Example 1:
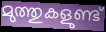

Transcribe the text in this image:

മുത്തുകളുണ്ട്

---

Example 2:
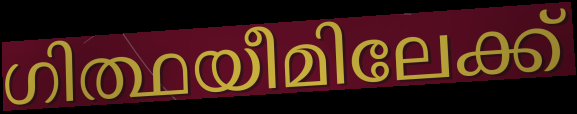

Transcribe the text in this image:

ഗിത്ഥയീമിലേക്ക്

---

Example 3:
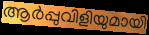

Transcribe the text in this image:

ആർപ്പുവിളിയുമായി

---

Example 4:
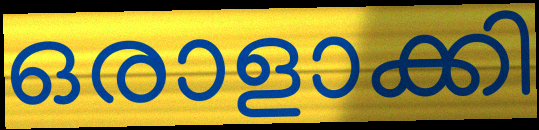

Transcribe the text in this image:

ഒരാളാക്കി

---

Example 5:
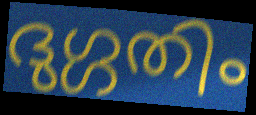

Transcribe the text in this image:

ദുഗ്ഗതിം